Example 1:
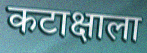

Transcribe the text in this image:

कटाक्षाला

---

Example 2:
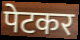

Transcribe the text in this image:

पेटकर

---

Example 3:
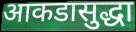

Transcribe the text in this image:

आकडासुद्धा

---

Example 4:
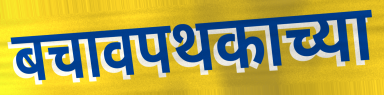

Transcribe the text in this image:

बचावपथकाच्या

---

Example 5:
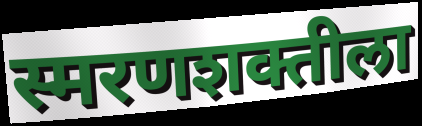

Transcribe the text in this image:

स्मरणशक्तीला